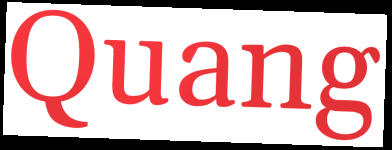
Quang